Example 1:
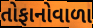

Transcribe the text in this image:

તોફાનોવાળા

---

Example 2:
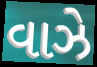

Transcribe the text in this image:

વાઝે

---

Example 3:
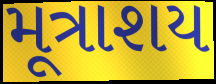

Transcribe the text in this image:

મૂત્રાશય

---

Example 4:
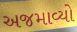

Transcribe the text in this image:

અજમાવ્યો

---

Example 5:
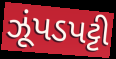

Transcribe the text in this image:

ઝૂંપડપટ્ટી